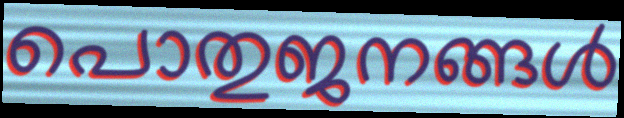
പൊതുജനങ്ങൾ